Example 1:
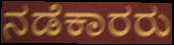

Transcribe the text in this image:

ನಡೆಕಾರರು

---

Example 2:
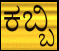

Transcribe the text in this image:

ಕಬ್ಬಿ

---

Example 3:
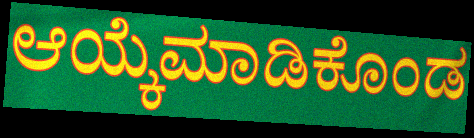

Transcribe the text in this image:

ಆಯ್ಕೆಮಾಡಿಕೊಂಡ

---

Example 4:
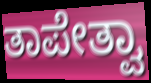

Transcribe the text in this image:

ತಾಪೇತ್ವಾ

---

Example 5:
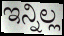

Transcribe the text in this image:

ಇನ್ನಿಲ್ಲ